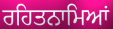
ਰਹਿਤਨਾਮਿਆਂ